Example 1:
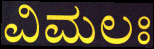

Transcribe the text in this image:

ವಿಮಲಃ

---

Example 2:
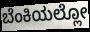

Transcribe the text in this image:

ಬೆಂಕಿಯಲ್ಲೋ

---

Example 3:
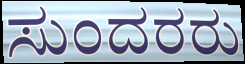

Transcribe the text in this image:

ಸುಂದರರು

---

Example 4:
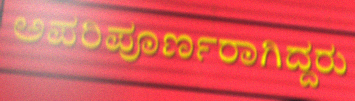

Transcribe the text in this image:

ಅಪರಿಪೂರ್ಣರಾಗಿದ್ದರು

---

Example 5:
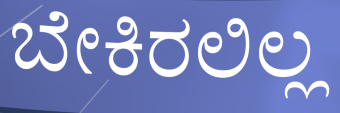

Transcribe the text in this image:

ಬೇಕಿರಲಿಲ್ಲ